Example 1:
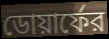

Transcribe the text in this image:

ডোয়ার্ফের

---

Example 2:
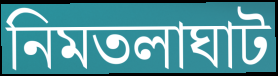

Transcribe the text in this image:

নিমতলাঘাট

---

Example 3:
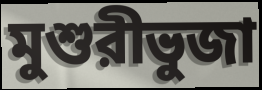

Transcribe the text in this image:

মুশুরীভুজা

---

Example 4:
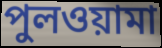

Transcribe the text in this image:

পুলওয়ামা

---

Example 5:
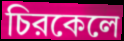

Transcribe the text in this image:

চিরকেলে